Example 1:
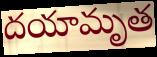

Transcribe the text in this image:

దయామృత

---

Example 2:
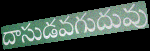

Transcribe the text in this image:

దాసుడవగుదువు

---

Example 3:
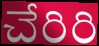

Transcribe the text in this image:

చేరిరి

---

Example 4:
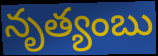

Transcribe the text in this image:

నృత్యంబు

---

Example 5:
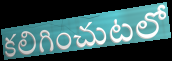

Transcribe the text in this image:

కలిగించుటలో